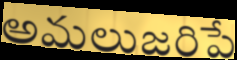
అమలుజరిపే